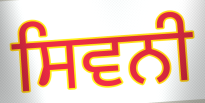
ਸਿਵਨੀ